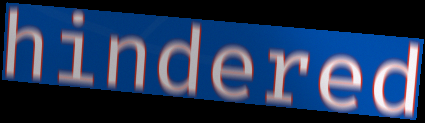
hindered